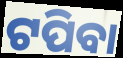
ଟପିବା